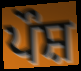
ਪੌਸ਼